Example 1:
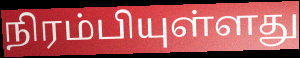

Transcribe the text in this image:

நிரம்பியுள்ளது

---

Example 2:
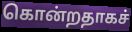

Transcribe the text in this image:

கொன்றதாகச்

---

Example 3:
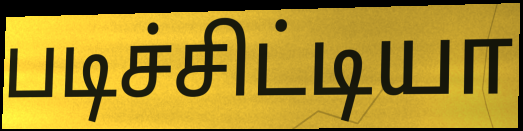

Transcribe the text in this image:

படிச்சிட்டியா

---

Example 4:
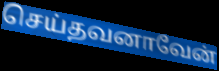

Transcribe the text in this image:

செய்தவனாவேன்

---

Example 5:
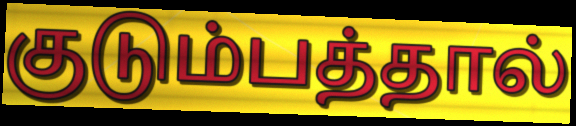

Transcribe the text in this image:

குடும்பத்தால்